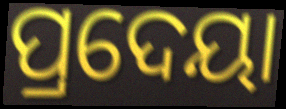
ପ୍ରଦେୟା